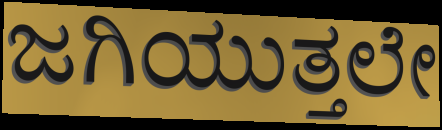
ಜಗಿಯುತ್ತಲೇ